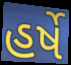
હર્ષે